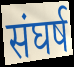
संघर्ष